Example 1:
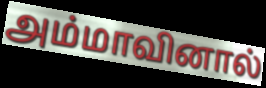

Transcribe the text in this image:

அம்மாவினால்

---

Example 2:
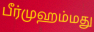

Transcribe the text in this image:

பீர்முஹம்மது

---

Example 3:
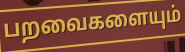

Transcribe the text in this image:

பறவைகளையும்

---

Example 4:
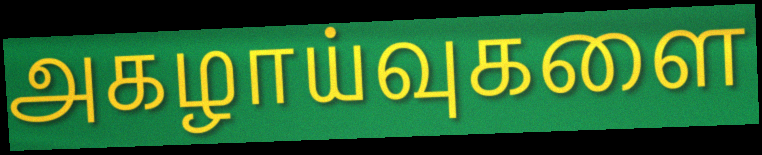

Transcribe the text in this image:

அகழாய்வுகளை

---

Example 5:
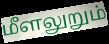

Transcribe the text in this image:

மீளலுறும்